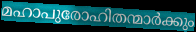
മഹാപുരോഹിതന്മാർക്കും